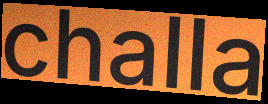
challa